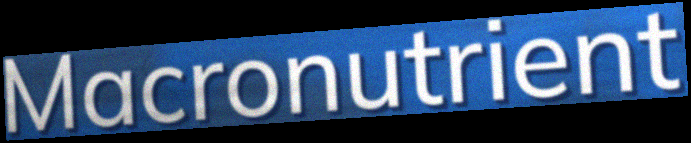
Macronutrient